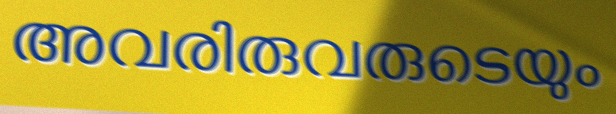
അവരിരുവരുടെയും